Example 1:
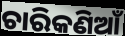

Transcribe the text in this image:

ଚାରିକଣିଆଁ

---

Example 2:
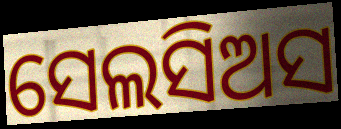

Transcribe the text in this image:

ସେଲସିଅସ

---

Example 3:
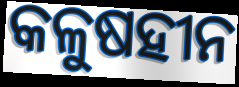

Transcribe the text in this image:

କଳୁଷହୀନ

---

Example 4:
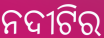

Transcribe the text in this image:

ନଦୀଟିର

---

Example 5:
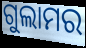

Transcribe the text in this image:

ଗୁଲାମର